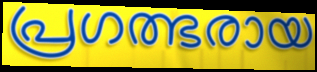
പ്രഗത്ഭരായ